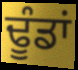
ਢੂੰਡਾਂ